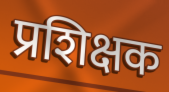
प्रशिक्षक